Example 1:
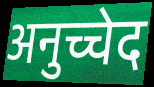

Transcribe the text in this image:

अनुच्चेद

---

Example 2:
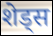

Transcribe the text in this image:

शेड्स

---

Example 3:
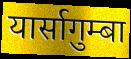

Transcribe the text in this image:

यार्सागुम्बा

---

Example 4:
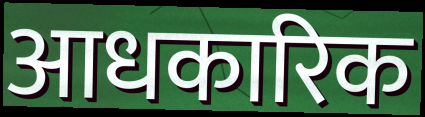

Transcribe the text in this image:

आधकारिक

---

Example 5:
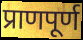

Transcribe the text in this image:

प्राणपूर्ण